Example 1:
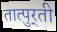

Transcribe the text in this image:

तात्पुर्ती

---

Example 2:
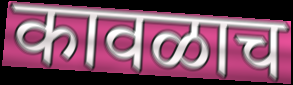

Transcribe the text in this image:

कावळाच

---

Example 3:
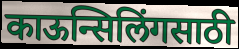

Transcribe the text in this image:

काऊन्सिलिंगसाठी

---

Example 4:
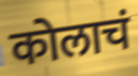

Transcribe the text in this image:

कोलाचं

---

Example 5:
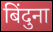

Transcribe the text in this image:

बिंदुना